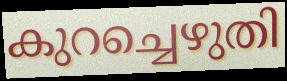
കുറച്ചെഴുതി